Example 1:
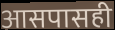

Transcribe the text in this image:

आसपासही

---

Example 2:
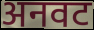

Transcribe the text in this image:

अनवट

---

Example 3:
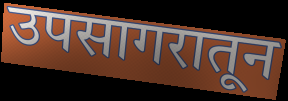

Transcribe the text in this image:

उपसागरातून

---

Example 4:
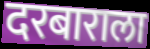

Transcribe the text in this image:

दरबाराला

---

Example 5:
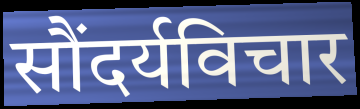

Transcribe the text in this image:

सौंदर्यविचार